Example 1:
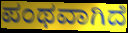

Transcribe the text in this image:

ಪಂಥವಾಗಿದೆ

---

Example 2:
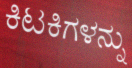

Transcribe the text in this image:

ಕಿಟಕಿಗಳನ್ನು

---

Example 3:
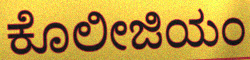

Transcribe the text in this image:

ಕೊಲೀಜಿಯಂ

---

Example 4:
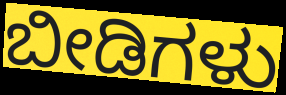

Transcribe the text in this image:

ಬೀಡಿಗಳು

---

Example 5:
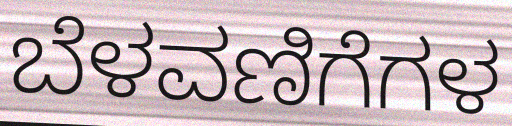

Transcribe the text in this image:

ಬೆಳವಣಿಗೆಗಳ